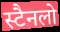
स्टैनलो